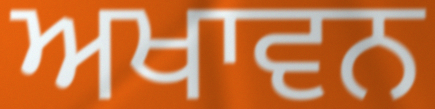
ਅਖਾਵਨ